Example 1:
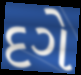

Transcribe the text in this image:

દગે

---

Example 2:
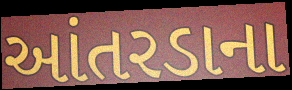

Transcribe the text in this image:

આંતરડાના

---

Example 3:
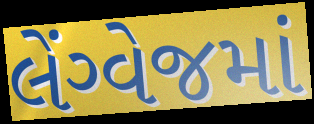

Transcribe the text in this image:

લેંગ્વેજમાં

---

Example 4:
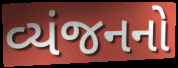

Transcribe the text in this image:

વ્યંજનનો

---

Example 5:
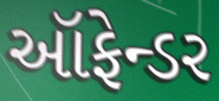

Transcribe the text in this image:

ઑફેન્ડર